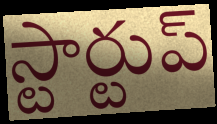
స్టార్టుప్